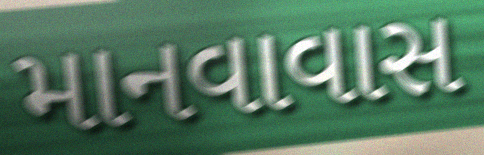
માનવાવાસ